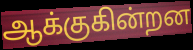
ஆக்குகின்றன